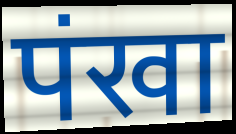
पंखा